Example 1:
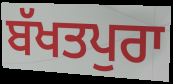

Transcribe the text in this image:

ਬੱਖਤਪੁਰਾ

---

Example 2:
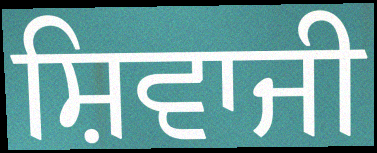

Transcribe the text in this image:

ਸ਼ਿਵਾਜੀ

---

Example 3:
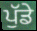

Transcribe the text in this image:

ਪੁੱਡੇ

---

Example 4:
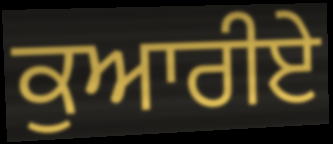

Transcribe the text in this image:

ਕੁਆਰੀਏ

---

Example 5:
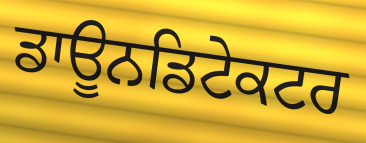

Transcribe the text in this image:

ਡਾਊਨਡਿਟੇਕਟਰ